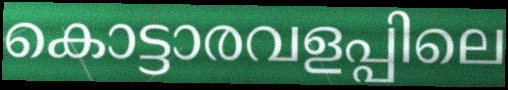
കൊട്ടാരവളപ്പിലെ